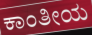
ಕಾಂತೀಯ